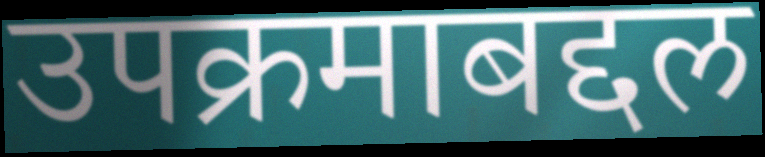
उपक्रमाबद्दल